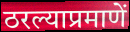
ठरल्याप्रमाणें